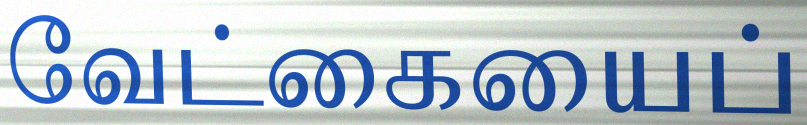
வேட்கையைப்